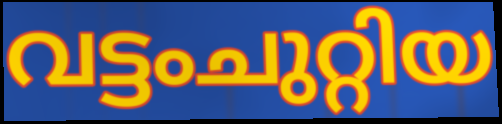
വട്ടംചുറ്റിയ